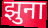
झुना